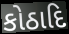
કોઠાદિ